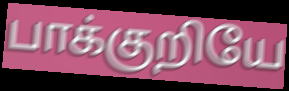
பாக்குறியே